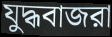
যুদ্ধবাজরা